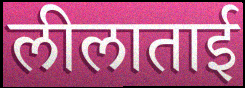
लीलाताई